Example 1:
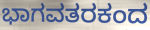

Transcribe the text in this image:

ಭಾಗವತರಕಂದ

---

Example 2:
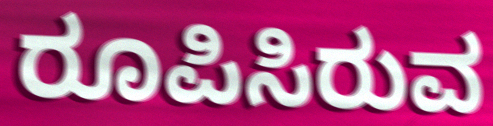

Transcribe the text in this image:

ರೂಪಿಸಿರುವ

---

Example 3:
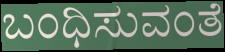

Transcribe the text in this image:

ಬಂಧಿಸುವಂತೆ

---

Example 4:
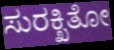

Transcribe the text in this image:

ಸುರಕ್ಖಿತೋ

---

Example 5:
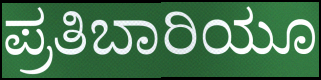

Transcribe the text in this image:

ಪ್ರತಿಬಾರಿಯೂ